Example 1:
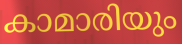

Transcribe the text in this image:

കാമാരിയും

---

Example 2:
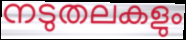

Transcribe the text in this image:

നടുതലകളും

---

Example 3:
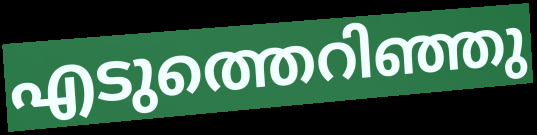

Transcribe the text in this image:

എടുത്തെറിഞ്ഞു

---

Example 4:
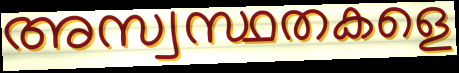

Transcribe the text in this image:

അസ്വസ്ഥതകളെ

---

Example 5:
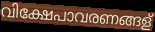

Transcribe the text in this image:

വിക്ഷേപാവരണങ്ങള്